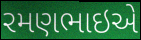
રમણભાઇએ